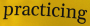
practicing